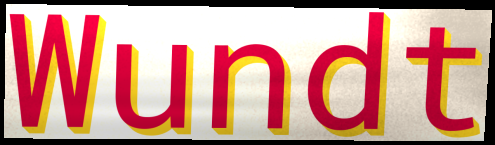
Wundt